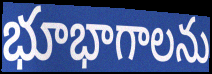
భూభాగాలను